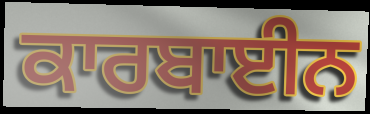
ਕਾਰਬਾਈਨ